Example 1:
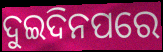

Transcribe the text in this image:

ଦୁଇଦିନପରେ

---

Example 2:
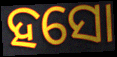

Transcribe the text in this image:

ହସୋ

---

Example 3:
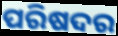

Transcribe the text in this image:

ପରିଷଦର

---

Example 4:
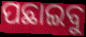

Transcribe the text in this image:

ପଛାଇବୁ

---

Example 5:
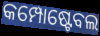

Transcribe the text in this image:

କମ୍ପୋଷ୍ଟେବଲ